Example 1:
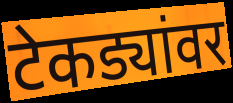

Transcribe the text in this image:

टेकड्यांवर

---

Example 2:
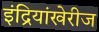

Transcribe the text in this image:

इंद्रियांखेरीज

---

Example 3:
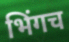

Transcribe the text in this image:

भिंगच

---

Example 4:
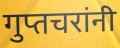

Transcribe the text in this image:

गुप्तचरांनी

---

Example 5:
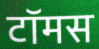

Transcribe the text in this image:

टॉमस